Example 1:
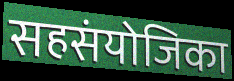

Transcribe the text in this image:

सहसंयोजिका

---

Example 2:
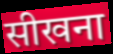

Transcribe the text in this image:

सीखना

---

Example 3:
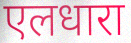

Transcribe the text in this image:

एलधारा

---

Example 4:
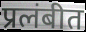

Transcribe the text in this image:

प्रलंबीत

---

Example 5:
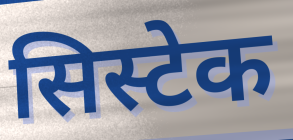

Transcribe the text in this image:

सिस्टेक